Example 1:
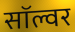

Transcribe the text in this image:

सॉल्वर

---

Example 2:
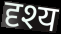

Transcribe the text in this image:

दृश्‍य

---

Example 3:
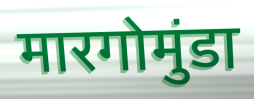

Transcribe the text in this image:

मारगोमुंडा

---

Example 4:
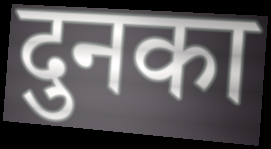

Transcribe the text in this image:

दुनका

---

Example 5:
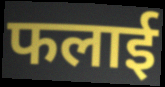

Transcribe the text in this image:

फलाई